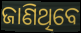
ଜାଣିଥିବେ